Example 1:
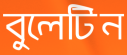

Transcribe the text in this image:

বুলেটিন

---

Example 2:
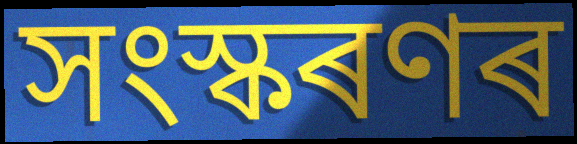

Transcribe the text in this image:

সংস্কৰণৰ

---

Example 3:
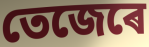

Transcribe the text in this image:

তেজেৰে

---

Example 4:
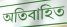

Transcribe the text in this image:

অতিবাহিত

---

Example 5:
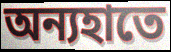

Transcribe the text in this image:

অন্যহাতে